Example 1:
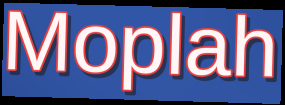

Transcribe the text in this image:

Moplah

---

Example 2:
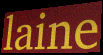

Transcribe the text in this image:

laine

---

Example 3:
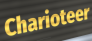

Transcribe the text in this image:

Charioteer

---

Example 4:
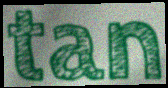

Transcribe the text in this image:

tan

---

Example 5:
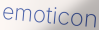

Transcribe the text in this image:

emoticon